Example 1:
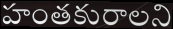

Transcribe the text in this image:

హంతకురాలని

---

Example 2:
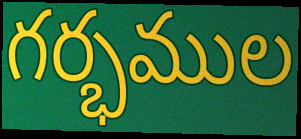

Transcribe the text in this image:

గర్భముల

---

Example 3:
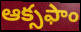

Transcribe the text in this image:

ఆక్సఫాం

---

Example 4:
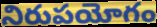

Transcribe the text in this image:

నిరుపయోగం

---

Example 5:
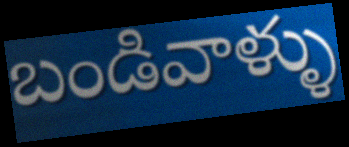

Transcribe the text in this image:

బండివాళ్ళు